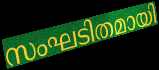
സംഘടിതമായി